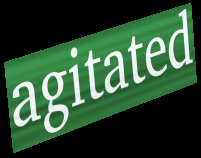
agitated